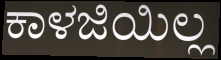
ಕಾಳಜಿಯಿಲ್ಲ